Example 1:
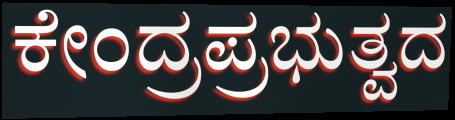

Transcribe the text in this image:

ಕೇಂದ್ರಪ್ರಭುತ್ವದ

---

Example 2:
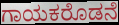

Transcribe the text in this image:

ಗಾಯಕರೊಡನೆ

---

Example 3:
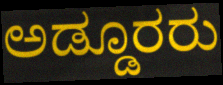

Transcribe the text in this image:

ಅಡ್ಡೂರರು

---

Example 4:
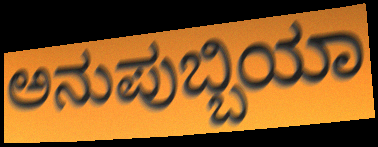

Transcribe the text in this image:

ಅನುಪುಬ್ಬಿಯಾ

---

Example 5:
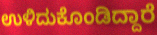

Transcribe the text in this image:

ಉಳಿದುಕೊಂಡಿದ್ದಾರೆ